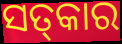
ସତ୍‌କାର